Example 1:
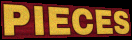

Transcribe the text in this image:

PIECES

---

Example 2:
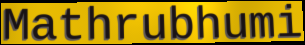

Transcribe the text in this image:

Mathrubhumi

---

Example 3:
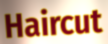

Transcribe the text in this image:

Haircut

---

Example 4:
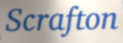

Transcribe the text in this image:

Scrafton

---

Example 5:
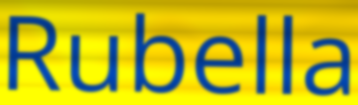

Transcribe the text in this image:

Rubella